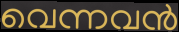
വെന്നവൻ